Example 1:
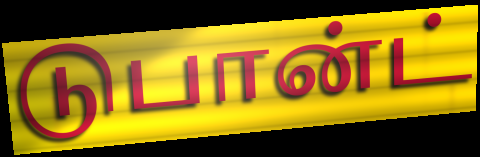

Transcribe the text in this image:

டுபான்ட்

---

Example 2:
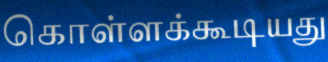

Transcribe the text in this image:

கொள்ளக்கூடியது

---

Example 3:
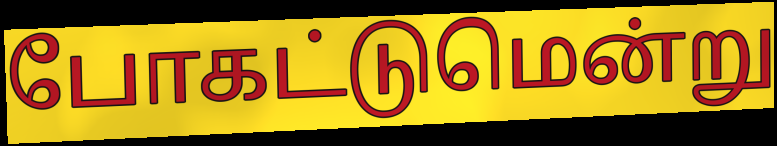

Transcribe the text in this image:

போகட்டுமென்று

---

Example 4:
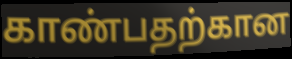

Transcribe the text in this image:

காண்பதற்கான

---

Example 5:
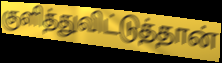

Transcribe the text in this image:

குளித்துவிட்டுத்தான்